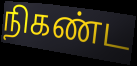
நிகண்ட